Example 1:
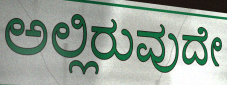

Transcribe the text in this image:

ಅಲ್ಲಿರುವುದೇ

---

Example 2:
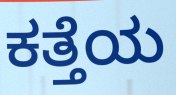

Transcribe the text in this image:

ಕತ್ತೆಯ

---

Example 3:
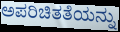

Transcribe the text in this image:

ಅಪರಿಚಿತತೆಯನ್ನು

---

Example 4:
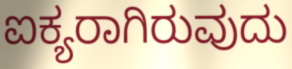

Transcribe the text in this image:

ಐಕ್ಯರಾಗಿರುವುದು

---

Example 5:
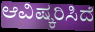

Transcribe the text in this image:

ಆವಿಷ್ಕರಿಸಿದೆ